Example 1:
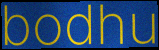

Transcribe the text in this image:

bodhu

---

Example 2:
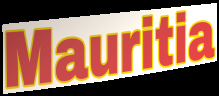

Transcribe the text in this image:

Mauritia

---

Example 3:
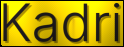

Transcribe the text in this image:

Kadri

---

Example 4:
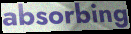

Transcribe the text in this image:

absorbing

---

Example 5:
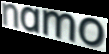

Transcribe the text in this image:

namo